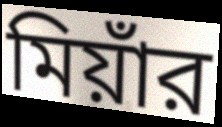
মিয়াঁর